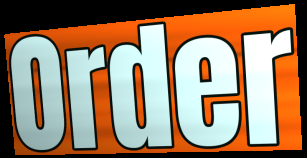
Order